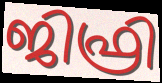
ജിഫ്രി